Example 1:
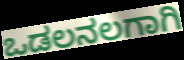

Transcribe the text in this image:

ಒಡಲನಲಗಾಗಿ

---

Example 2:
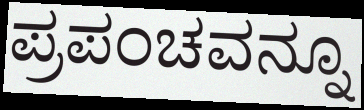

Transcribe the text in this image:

ಪ್ರಪಂಚವನ್ನೂ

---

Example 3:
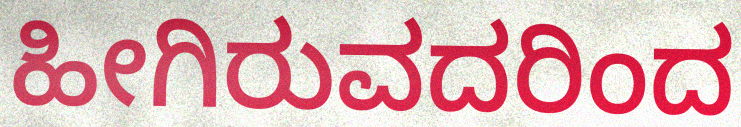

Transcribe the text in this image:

ಹೀಗಿರುವದರಿಂದ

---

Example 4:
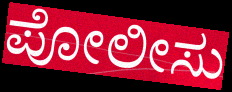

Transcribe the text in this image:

ಪೋಲೀಸು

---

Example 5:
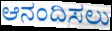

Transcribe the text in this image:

ಆನಂದಿಸಲು